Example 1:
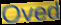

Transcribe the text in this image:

Oved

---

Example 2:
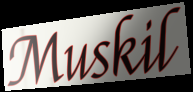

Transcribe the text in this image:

Muskil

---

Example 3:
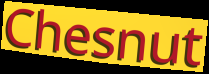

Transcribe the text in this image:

Chesnut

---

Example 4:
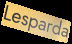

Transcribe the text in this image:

Lesparda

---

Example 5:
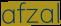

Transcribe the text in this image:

afzal